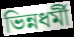
ভিন্নধর্মী